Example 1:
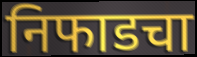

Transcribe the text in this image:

निफाडचा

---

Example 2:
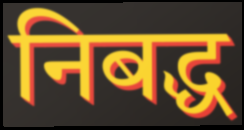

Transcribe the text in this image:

निबद्ध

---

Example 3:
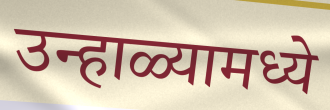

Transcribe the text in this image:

उन्हाळ्यामध्ये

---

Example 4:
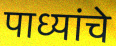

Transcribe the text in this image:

पाध्यांचे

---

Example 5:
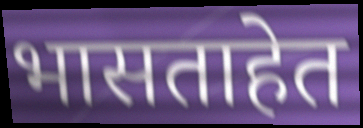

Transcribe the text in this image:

भासताहेत